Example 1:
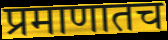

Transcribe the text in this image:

प्रमाणातच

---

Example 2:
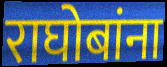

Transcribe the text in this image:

राघोबांना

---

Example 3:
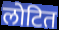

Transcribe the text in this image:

लोटित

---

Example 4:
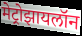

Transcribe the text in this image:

मेट्रोझायलॉन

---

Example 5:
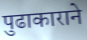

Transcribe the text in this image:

पुढाकाराने